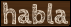
habla